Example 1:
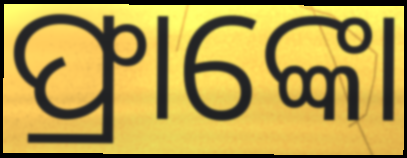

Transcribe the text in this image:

ଫ୍ରାଙ୍କୋ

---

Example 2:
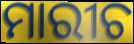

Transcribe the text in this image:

ମାରୀଚ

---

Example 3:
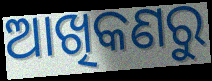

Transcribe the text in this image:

ଆଖିକଣରୁ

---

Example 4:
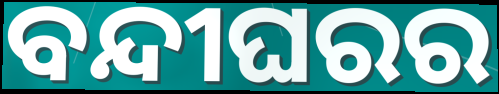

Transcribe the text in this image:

ବନ୍ଦୀଘରର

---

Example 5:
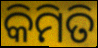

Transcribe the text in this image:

କିମିତି